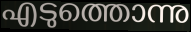
എടുത്തൊന്നു